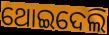
ଥୋଇଦେଲି